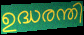
ഉദ്ധരന്തി